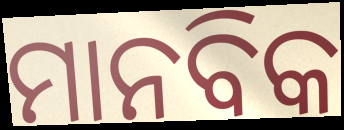
ମାନବିକ